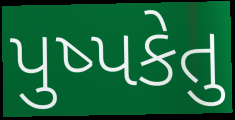
પુષ્પકેતુ